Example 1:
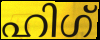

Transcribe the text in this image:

ഹിഗ്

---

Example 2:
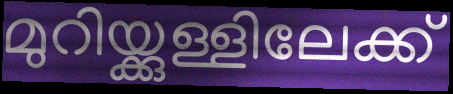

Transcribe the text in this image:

മുറിയ്ക്കുള്ളിലേക്ക്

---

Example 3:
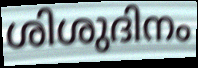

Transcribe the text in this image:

ശിശുദിനം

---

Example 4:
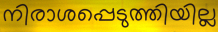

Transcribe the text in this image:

നിരാശപ്പെടുത്തിയില്ല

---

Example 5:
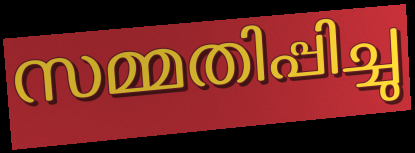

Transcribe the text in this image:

സമ്മതിപ്പിച്ചു